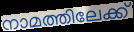
നാമത്തിലേക്ക്